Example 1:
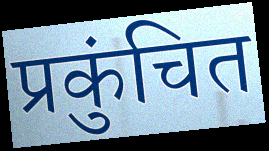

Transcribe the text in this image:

प्रकुंचित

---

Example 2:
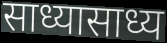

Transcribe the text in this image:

साध्यासाध्य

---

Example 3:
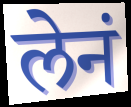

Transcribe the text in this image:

लेनं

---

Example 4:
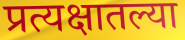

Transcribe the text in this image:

प्रत्यक्षातल्या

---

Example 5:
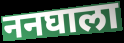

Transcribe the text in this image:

ननघाला